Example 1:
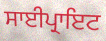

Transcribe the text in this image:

ਸਾਈਪ੍ਰਾਇਟ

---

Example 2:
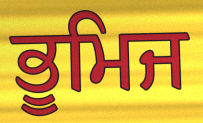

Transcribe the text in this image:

ਭੂਮਿਜ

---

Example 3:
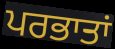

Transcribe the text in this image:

ਪਰਭਾਤਾਂ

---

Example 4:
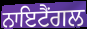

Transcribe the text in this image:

ਨਾਇਟੈਂਗਲ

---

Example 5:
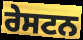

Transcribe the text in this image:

ਰੇਸਟਨ